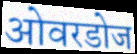
ओवरडोज